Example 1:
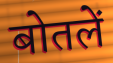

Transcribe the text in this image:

बोतलें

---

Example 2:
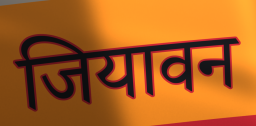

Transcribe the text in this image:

जियावन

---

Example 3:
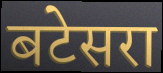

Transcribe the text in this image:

बटेसरा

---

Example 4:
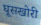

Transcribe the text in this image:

घूसखोरी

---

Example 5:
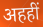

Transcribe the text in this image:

अहहीं